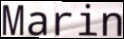
Marin